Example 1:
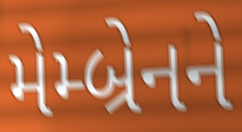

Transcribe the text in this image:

મેમ્બ્રેનને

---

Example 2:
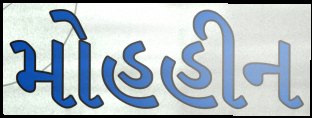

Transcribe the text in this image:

મોહહીન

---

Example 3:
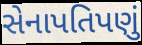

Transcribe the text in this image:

સેનાપતિપણું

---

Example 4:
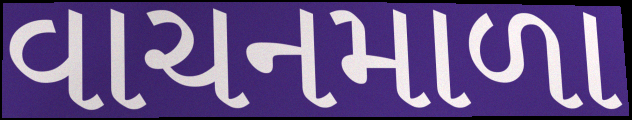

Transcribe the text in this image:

વાચનમાળા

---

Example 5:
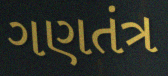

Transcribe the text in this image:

ગણતંત્ર